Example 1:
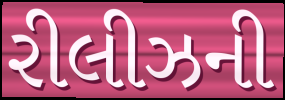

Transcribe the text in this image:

રીલીઝની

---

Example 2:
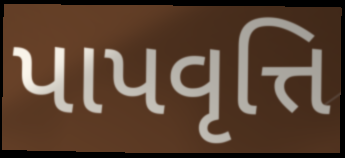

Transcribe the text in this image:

પાપવૃત્તિ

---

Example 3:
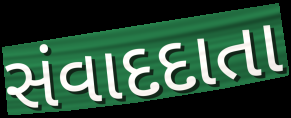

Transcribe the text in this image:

સંવાદદાતા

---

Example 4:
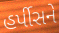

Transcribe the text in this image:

હર્પીસને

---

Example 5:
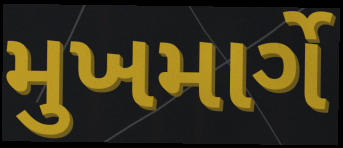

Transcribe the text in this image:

મુખમાર્ગે